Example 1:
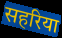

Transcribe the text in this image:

सहरिया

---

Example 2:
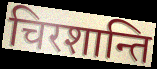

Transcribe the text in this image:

चिरशान्ति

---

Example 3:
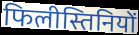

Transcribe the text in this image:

फिलीस्तिनियों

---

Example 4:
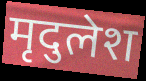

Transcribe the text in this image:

मृदुलेश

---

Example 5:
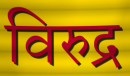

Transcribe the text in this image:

विरुद्र